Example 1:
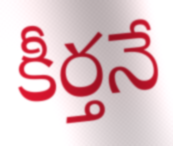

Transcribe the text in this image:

కీర్తనే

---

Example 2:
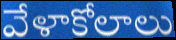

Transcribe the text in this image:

వేళాకోలాలు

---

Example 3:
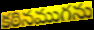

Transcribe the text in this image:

కఠినముగను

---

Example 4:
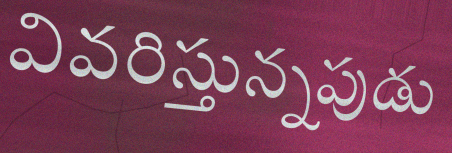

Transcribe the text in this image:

వివరిస్తున్నపుడు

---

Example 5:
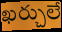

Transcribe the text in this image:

ఖర్చులే